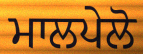
ਮਾਲਪੇਲੋ